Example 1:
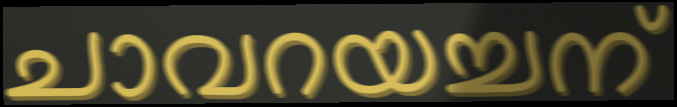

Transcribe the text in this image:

ചാവറയച്ചന്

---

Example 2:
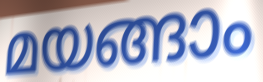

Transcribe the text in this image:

മയങ്ങാം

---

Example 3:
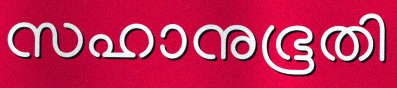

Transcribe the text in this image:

സഹാനുഭൂതി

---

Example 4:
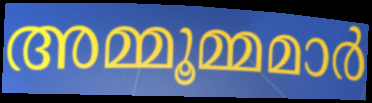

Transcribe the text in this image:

അമ്മൂമ്മമാർ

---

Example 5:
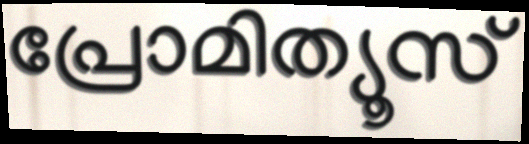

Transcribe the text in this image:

പ്രോമിത്യൂസ്